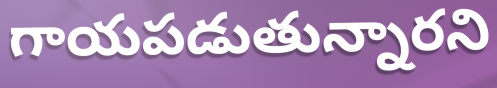
గాయపడుతున్నారని